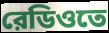
রেডিওতে